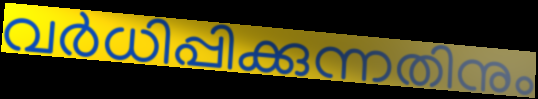
വർധിപ്പിക്കുന്നതിനും